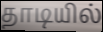
தாடியில்